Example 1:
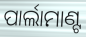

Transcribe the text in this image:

ପାର୍ଲାମାଣ୍ଟ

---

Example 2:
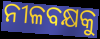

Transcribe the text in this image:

ନୀଳବକ୍ଷକୁ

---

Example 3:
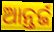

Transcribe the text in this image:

ଆନ୍ତର୍ଜ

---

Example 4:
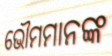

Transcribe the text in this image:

ଭୌମମାନଙ୍କ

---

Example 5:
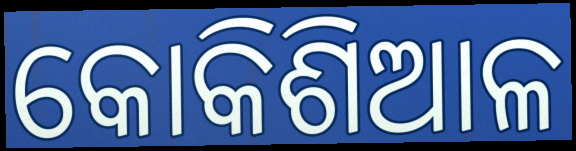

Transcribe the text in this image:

କୋକିଶିଆଳ